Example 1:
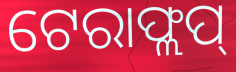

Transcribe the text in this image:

ଟେରାଫ୍ଲପ୍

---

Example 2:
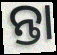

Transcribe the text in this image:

ନ୍ତା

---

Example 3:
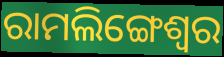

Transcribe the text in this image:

ରାମଲିଙ୍ଗେଶ୍ୱର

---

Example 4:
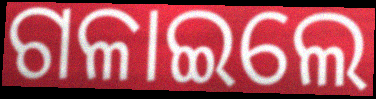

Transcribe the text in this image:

ଗଳାଇଲେ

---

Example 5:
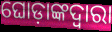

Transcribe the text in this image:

ଘୋଡ଼ାଙ୍କଦ୍ୱାରା